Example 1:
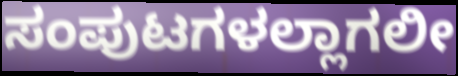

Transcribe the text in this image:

ಸಂಪುಟಗಳಲ್ಲಾಗಲೀ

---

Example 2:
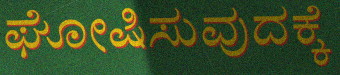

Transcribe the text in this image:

ಘೋಷಿಸುವುದಕ್ಕೆ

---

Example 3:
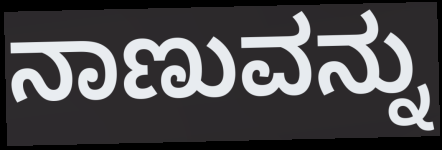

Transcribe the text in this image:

ನಾಣುವನ್ನು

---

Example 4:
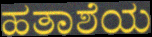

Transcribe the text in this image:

ಹತಾಶೆಯ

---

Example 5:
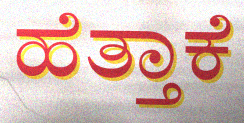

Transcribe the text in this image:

ಹೆತ್ತಾಕೆ